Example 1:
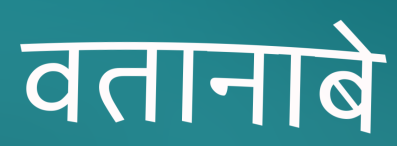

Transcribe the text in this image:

वतानाबे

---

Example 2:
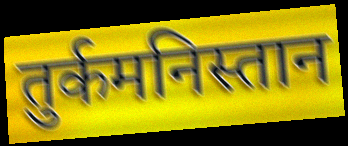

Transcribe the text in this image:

तुर्कमनिस्तान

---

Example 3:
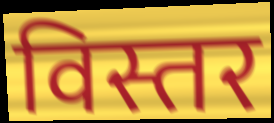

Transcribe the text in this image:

विस्तर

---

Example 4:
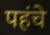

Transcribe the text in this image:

पहंचे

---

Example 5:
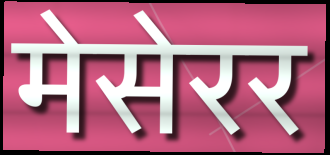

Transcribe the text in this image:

मेसेरर